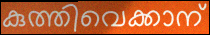
കുത്തിവെക്കാന്